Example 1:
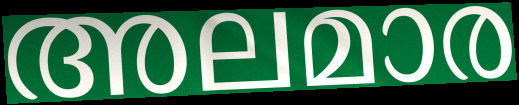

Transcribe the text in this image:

അലമാര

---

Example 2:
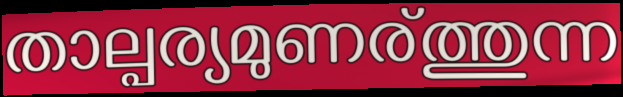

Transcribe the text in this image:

താല്പര്യമുണര്ത്തുന്ന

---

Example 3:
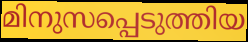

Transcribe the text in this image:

മിനുസപ്പെടുത്തിയ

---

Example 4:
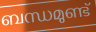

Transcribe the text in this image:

ബന്ധമുണ്ട്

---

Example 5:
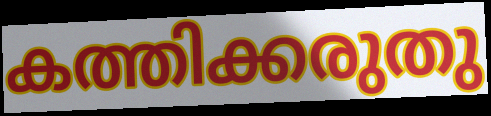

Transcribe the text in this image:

കത്തിക്കരുതു